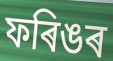
ফৰিঙৰ